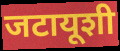
जटायूशी